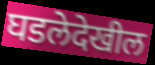
घडलेदेखील